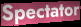
Spectator